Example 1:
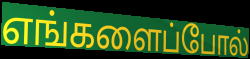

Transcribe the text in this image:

எங்களைப்போல்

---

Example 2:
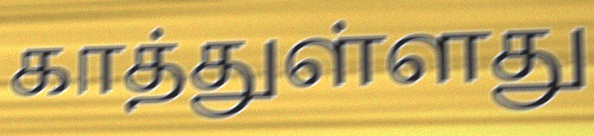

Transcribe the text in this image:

காத்துள்ளது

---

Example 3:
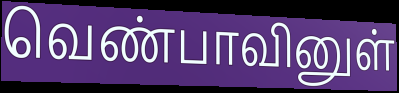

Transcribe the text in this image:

வெண்பாவினுள்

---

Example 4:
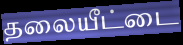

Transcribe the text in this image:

தலையீட்டை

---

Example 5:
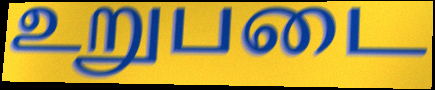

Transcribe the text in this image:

உறுபடை